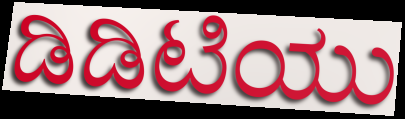
ಡಿಡಿಟಿಯು